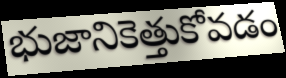
భుజానికెత్తుకోవడం